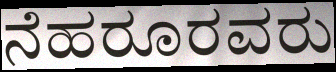
ನೆಹರೂರವರು